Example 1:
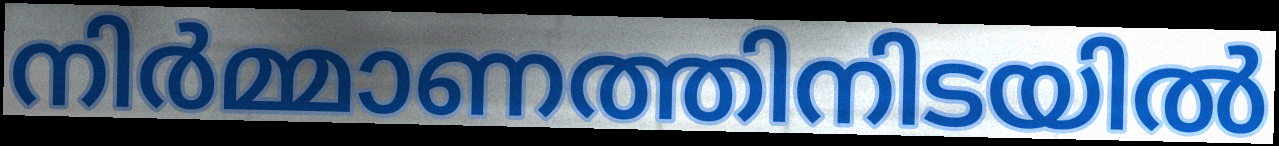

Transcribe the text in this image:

നിർമ്മാണത്തിനിടയിൽ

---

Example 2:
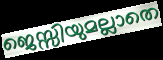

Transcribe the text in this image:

ജെസ്സിയുമല്ലാതെ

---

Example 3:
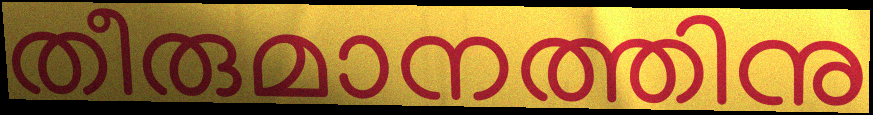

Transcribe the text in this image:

തീരുമാനത്തിനു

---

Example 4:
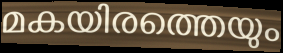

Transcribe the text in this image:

മകയിരത്തെയും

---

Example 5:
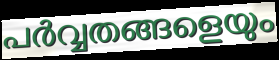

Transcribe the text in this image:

പർവ്വതങ്ങളെയും